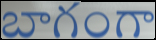
బాగంగా